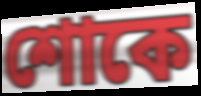
শোকে